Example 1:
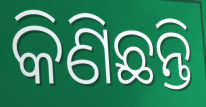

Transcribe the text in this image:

କିଣିଛନ୍ତି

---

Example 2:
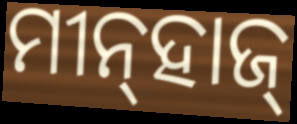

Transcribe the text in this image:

ମୀନ୍‌ହାଜ୍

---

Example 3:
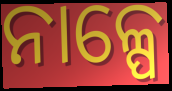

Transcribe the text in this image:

ନାଳ୍ପେ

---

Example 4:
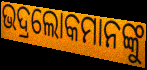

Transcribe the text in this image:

ଭଦ୍ରଲୋକମାନଙ୍କୁ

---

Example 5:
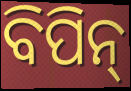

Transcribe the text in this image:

ବିପିନ୍